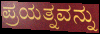
ಪ್ರಯತ್ನವನ್ನು